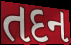
તદન